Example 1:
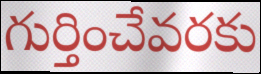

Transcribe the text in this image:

గుర్తించేవరకు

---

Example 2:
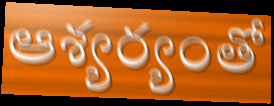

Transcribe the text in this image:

ఆశ్యర్యంతో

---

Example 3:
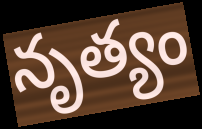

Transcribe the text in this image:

నృత్యం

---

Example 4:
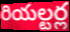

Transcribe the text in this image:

రియల్టర్ల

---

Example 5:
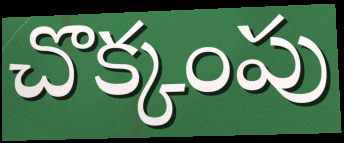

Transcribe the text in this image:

చొక్కంపు